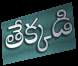
తేక్కడి